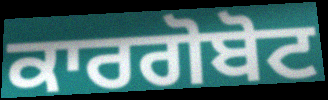
ਕਾਰਗੋਬੋਟ